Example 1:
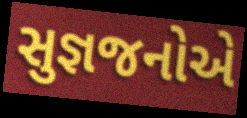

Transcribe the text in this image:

સુજ્ઞજનોએ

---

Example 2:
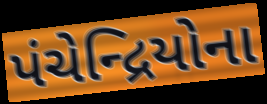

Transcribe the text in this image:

પંચેન્દ્રિયોના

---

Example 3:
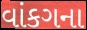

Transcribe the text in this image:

વાંકગના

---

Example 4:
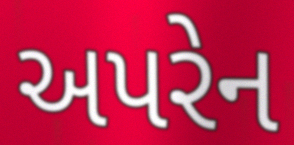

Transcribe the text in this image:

અપરેન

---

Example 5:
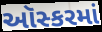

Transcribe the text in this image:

ઑસ્કરમાં